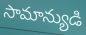
సామాన్యుడి